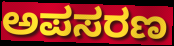
ಅಪಸರಣ